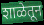
शाळेतून